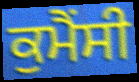
ਕੁਮੈਂਸੀ